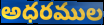
అధరముల